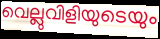
വെല്ലുവിളിയുടെയും